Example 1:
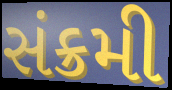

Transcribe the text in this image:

સંક્રમી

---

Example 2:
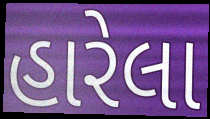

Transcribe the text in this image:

હારેલા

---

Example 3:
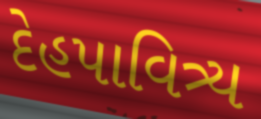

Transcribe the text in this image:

દેહપાવિત્ર્ય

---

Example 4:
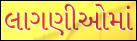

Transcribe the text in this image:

લાગણીઓમાં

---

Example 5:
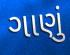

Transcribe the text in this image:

ગાણું